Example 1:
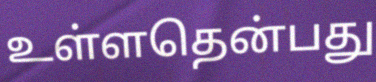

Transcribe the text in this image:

உள்ளதென்பது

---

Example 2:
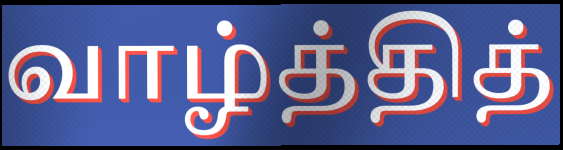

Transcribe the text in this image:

வாழ்த்தித்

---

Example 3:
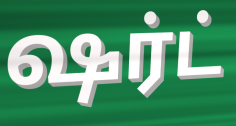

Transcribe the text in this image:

ஷர்ட்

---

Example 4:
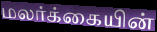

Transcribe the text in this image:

மலர்க்கையின்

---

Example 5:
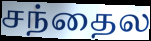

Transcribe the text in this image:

சந்தைல